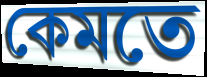
কেমতে